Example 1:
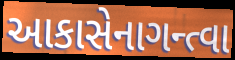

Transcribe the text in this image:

આકાસેનાગન્ત્વા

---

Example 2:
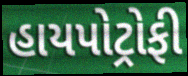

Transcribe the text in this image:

હાયપોટ્રોફી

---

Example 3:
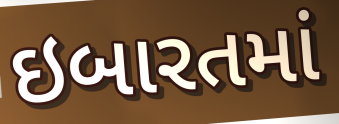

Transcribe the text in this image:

ઇબારતમાં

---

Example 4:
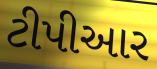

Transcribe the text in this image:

ટીપીઆર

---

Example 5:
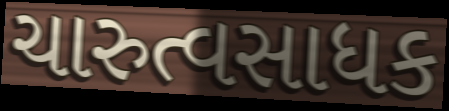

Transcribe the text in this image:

ચારુત્વસાધક